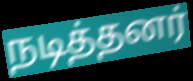
நடித்தனர்